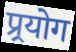
प्र्रयोग